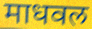
माधवल